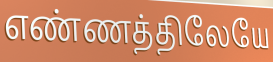
எண்ணத்திலேயே